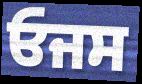
ਓਜਸ